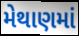
મેથાણમાં